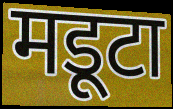
मडूटा